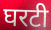
घरटी